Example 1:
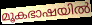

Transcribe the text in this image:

മൂകഭാഷയിൽ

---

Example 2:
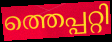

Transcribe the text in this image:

ത്തെപ്പറ്റി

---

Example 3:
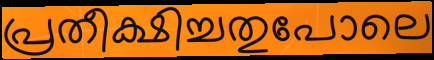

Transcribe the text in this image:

പ്രതീക്ഷിച്ചതുപോലെ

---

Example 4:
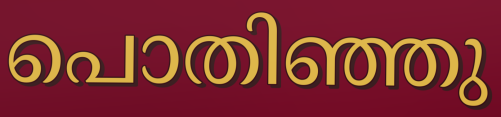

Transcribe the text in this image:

പൊതിഞ്ഞു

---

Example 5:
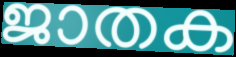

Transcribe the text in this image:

ജാതക